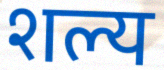
शल्य